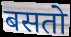
बसतो